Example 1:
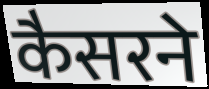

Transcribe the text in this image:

कैसरने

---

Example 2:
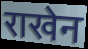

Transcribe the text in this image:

राखेन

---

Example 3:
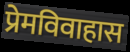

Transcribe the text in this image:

प्रेमविवाहास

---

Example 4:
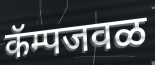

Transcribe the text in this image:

कॅम्पजवळ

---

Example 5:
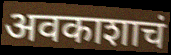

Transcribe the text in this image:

अवकाशाचं